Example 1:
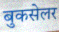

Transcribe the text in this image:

बुकसेलर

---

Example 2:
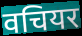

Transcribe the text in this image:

वचियर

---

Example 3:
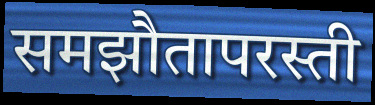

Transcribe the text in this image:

समझौतापरस्ती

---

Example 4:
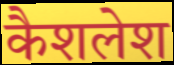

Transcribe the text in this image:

कैशलेश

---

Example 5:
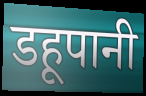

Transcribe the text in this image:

डहूपानी